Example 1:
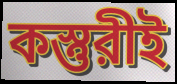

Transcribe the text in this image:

কস্তুরীই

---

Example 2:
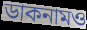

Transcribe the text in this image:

ডাকনামও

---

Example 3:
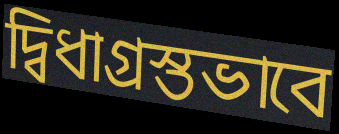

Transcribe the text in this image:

দ্বিধাগ্রস্তভাবে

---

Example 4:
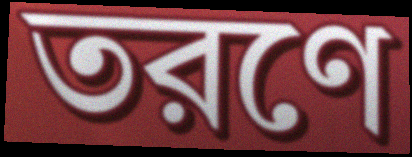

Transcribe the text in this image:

তরণে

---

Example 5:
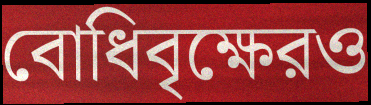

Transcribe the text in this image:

বোধিবৃক্ষেরও